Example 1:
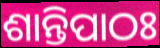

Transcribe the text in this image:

ଶାନ୍ତିପାଠଃ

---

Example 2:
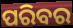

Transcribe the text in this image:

ପରିବର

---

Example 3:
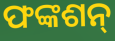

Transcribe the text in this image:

ଫଙ୍କଶନ୍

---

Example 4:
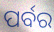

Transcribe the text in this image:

ପର୍ବର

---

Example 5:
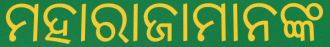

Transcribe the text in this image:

ମହାରାଜାମାନଙ୍କ